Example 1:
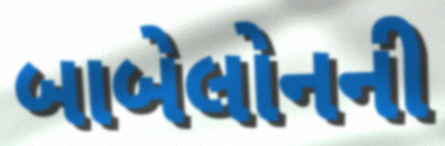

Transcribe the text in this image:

બાબેલોનની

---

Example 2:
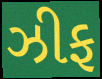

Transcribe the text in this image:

ઝીફ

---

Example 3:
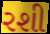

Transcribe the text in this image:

રશી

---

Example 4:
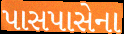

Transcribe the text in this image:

પાસપાસેના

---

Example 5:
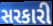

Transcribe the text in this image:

સરકારી